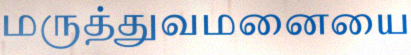
மருத்துவமனையை